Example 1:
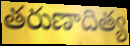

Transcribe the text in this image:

తరుణాదిత్య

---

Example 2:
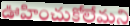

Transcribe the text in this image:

ఊహించుకోలేమని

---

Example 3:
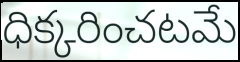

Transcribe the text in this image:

ధిక్కరించటమే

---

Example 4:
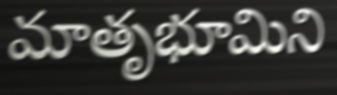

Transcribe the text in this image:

మాతృభూమిని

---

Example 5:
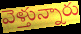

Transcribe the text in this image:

వెళ్తున్నారు